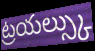
ట్రయల్స్కు